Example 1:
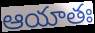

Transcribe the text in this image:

ఆయాతః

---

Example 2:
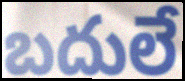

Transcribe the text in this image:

బదులే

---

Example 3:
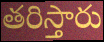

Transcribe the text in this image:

తరిస్తారు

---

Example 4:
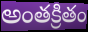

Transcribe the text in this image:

అంతక్రితం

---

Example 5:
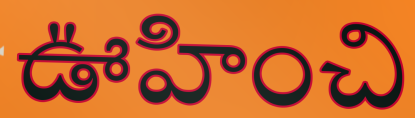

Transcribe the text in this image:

ఊహించి